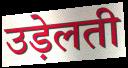
उड़ेलती